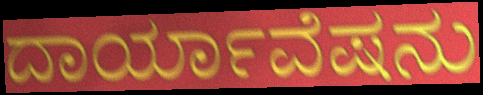
ದಾರ್ಯಾವೆಷನು